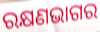
ରକ୍ଷଣଭାଗର